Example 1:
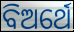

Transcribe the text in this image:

ବିଅର୍ଥେ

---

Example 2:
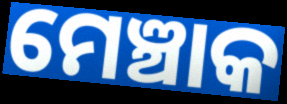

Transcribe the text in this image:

ମେଞ୍ଚାକ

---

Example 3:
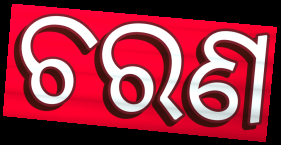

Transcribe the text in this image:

ଚରଣ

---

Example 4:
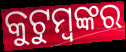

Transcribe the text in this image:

କୁଟୁମ୍ବଙ୍କର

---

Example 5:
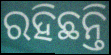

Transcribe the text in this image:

ରହିଛନ୍ତି